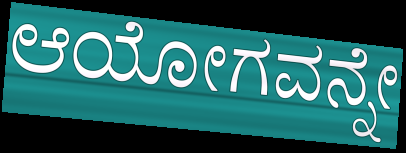
ಆಯೋಗವನ್ನೇ